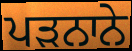
ਪੜਨਾਨੇ